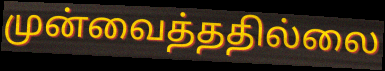
முன்வைத்ததில்லை